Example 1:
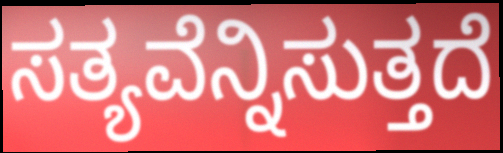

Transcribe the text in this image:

ಸತ್ಯವೆನ್ನಿಸುತ್ತದೆ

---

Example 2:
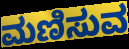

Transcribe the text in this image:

ಮಣಿಸುವ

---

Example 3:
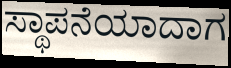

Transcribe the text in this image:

ಸ್ಥಾಪನೆಯಾದಾಗ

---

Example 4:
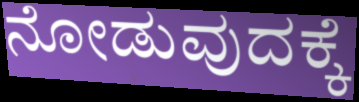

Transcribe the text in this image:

ನೋಡುವುದಕ್ಕೆ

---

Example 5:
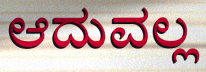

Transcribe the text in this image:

ಆದುವಲ್ಲ